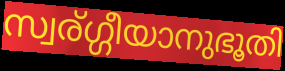
സ്വര്ഗ്ഗീയാനുഭൂതി